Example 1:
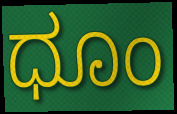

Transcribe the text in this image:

ಧೂಂ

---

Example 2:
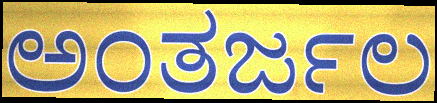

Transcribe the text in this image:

ಅಂತರ್ಜಲ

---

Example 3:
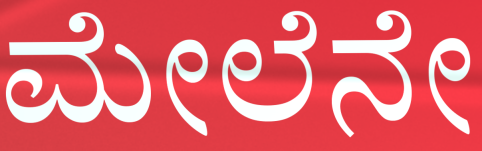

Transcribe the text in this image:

ಮೇಲೆನೇ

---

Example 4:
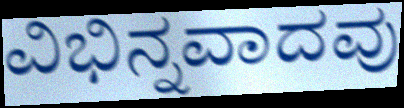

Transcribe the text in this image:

ವಿಭಿನ್ನವಾದವು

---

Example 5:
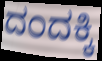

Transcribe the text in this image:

ದಂದಕ್ಕಿ